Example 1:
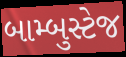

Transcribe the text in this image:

બામ્બુસ્ટેજ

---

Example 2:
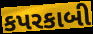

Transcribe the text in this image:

કપરકાબી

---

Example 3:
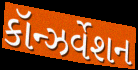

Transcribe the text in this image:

કૉન્ઝર્વેશન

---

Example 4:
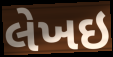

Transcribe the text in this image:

લેખઇ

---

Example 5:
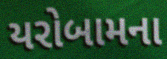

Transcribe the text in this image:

યરોબામના